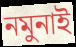
নমুনাই